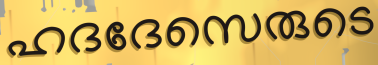
ഹദദേസെരുടെ